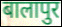
बालापुर